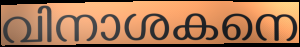
വിനാശകനെ